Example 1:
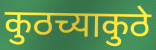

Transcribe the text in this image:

कुठच्याकुठे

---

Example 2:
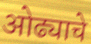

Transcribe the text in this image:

ओढ्याचे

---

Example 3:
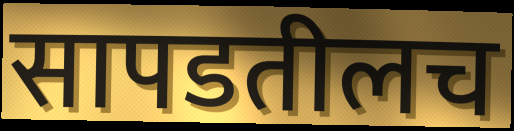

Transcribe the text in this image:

सापडतीलच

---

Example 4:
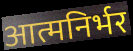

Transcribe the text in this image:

आत्मनिर्भर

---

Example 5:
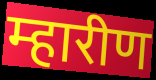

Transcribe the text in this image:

म्हारीण